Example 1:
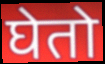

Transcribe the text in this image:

घेतो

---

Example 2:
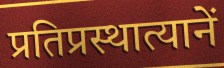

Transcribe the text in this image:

प्रतिप्रस्थात्यानें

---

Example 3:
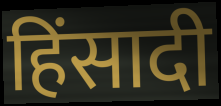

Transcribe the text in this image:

हिंसादी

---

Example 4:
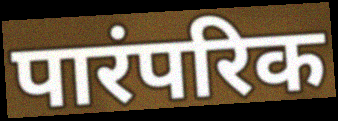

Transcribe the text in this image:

पारंपरिक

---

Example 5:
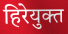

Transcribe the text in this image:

हिरेयुक्त